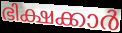
ഭിക്ഷക്കാർ